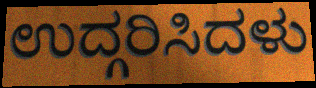
ಉದ್ಗರಿಸಿದಳು